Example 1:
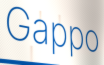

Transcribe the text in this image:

Gappo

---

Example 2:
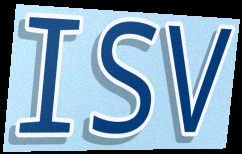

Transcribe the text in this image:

ISV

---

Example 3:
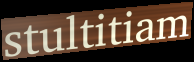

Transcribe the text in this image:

stultitiam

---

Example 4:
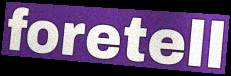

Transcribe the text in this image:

foretell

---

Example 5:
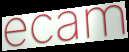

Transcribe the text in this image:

ecam